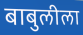
बाबुलीला